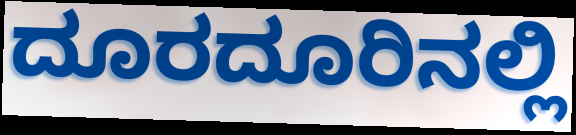
ದೂರದೂರಿನಲ್ಲಿ